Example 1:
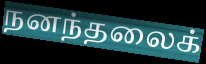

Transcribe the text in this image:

நனந்தலைக்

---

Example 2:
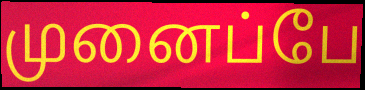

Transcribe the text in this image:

முனைப்பே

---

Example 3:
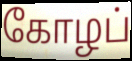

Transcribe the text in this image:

கோழப்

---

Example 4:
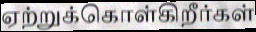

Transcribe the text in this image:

ஏற்றுக்கொள்கிறீர்கள்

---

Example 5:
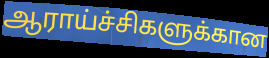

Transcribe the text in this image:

ஆராய்ச்சிகளுக்கான